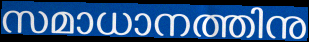
സമാധാനത്തിനു